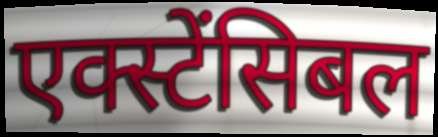
एक्स्टेंसिबल